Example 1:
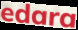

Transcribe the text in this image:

edara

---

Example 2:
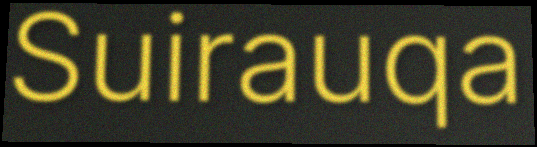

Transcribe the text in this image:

Suirauqa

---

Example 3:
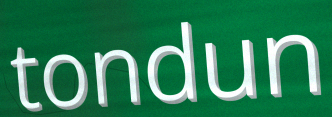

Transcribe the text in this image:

tondun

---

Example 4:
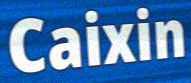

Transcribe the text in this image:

Caixin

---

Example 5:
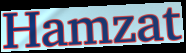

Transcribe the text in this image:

Hamzat